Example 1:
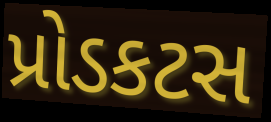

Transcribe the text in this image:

પ્રોડકટસ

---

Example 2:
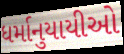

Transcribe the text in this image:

ધર્માનુયાયીઓ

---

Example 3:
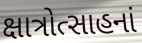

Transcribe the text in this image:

ક્ષાત્રોત્સાહનાં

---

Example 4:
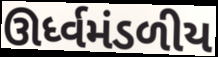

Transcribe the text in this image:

ઊર્ધ્વમંડળીય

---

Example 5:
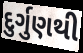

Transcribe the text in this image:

દુર્ગુણથી